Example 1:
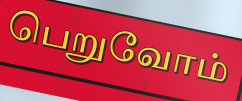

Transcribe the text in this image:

பெறுவோம்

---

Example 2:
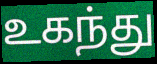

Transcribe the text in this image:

உகந்து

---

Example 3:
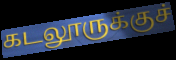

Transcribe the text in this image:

கடலூருக்குச்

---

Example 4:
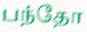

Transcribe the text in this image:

பந்தோ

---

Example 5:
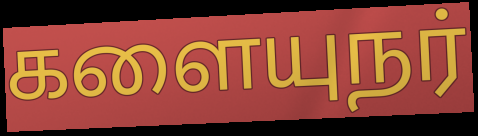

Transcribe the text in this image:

களையுநர்